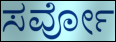
ಸರ್ವೋ